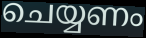
ചെയ്യണം